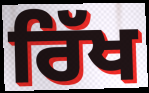
ਰਿੱਖ